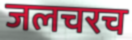
जलचरच